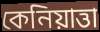
কেনিয়াত্তা